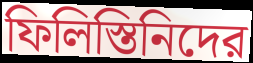
ফিলিস্তিনিদের